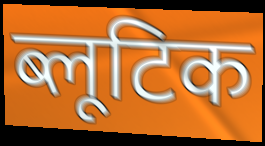
ब्लूटिक